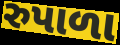
રુપાળા